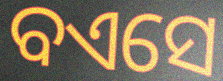
ବଏସେ